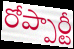
రోప్పార్టీ